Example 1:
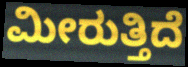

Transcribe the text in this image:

ಮೀರುತ್ತಿದೆ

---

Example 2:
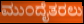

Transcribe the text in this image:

ಮುಂದೈತರಲು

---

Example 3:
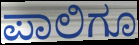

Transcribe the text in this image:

ಪಾಲಿಗೂ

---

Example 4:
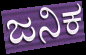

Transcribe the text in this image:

ಜನಿಕ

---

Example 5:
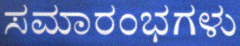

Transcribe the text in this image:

ಸಮಾರಂಭಗಳು